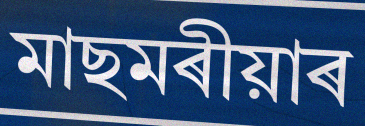
মাছমৰীয়াৰ